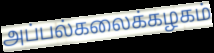
அப்பல்கலைக்கழகம்